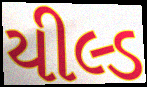
યીલ્ડ